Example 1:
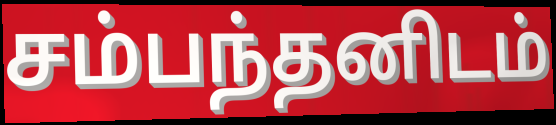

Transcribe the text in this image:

சம்பந்தனிடம்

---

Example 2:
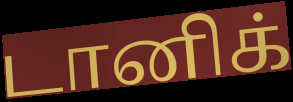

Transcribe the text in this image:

டானிக்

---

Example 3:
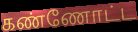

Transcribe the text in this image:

கண்ணோட்ட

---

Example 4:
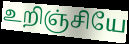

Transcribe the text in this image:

உறிஞ்சியே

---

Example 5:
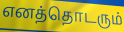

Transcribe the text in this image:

எனத்தொடரும்